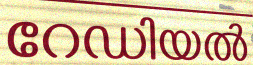
റേഡിയൽ